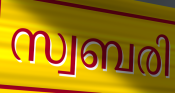
സ്വബരി